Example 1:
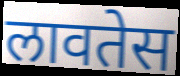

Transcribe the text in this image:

लावतेस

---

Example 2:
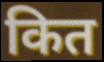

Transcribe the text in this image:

कित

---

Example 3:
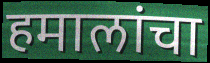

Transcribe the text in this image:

हमालांचा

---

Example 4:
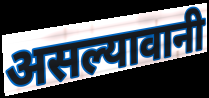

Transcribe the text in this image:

असल्यावानी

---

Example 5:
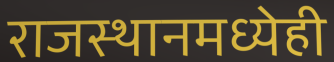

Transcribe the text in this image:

राजस्थानमध्येही